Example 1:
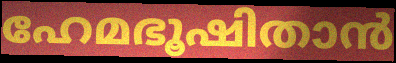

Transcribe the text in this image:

ഹേമഭൂഷിതാൻ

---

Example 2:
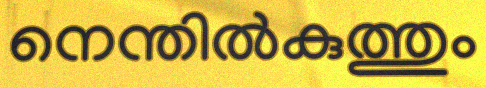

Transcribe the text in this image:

നെന്തിൽകുത്തും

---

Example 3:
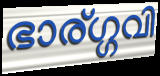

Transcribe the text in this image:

ഭാര്ഗ്ഗവി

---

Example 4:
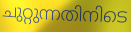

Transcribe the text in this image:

ചുറ്റുന്നതിനിടെ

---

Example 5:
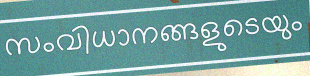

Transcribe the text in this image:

സംവിധാനങ്ങളുടെയും